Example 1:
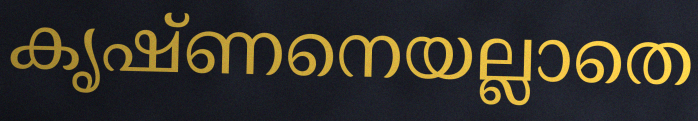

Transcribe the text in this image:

കൃഷ്ണനെയല്ലാതെ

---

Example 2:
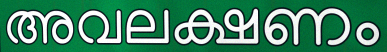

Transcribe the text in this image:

അവലക്ഷണം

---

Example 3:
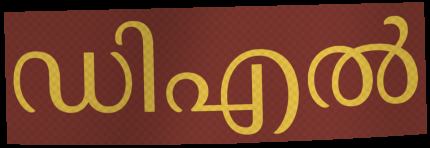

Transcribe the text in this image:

ഡിഎൽ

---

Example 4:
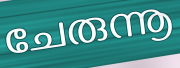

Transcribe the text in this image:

ചേരുന്നൂ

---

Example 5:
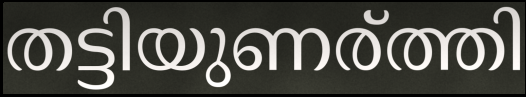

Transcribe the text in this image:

തട്ടിയുണര്ത്തി